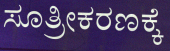
ಸೂತ್ರೀಕರಣಕ್ಕೆ